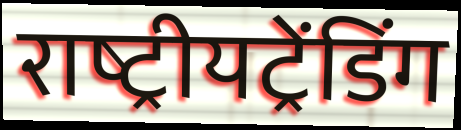
राष्ट्रीयट्रेंडिंग